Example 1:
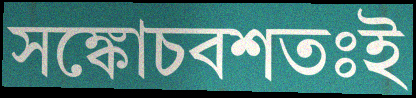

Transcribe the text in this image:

সঙ্কোচবশতঃই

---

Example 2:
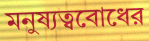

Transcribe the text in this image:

মনুষ্যত্ববোধের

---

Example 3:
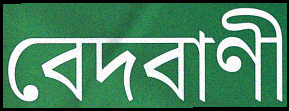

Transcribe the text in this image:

বেদবাণী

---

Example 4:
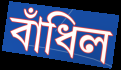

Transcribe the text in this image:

বাঁধিল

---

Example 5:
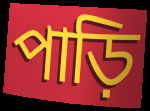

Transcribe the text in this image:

পাড়ি